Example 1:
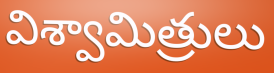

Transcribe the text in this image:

విశ్వామిత్రులు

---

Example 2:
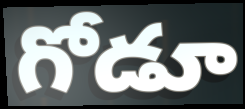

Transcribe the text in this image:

గోడూ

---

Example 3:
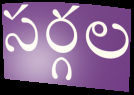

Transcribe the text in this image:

సర్గల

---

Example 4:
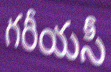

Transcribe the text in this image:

గరీయసీ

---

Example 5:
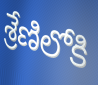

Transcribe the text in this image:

శ్రేణిలోకి